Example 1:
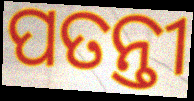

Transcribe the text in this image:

ପତନ୍ତୀ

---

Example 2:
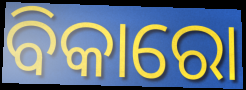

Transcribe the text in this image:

ବିକାରୋ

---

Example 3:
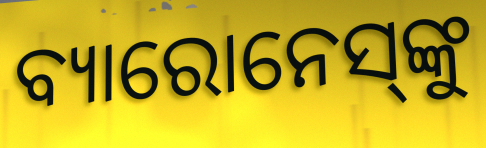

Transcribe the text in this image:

ବ୍ୟାରୋନେସ୍‌ଙ୍କୁ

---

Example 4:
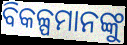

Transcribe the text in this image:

ବିକଳ୍ପମାନଙ୍କୁ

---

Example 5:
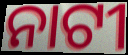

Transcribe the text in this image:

ନାଟୀ